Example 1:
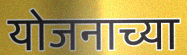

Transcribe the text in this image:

योजनाच्या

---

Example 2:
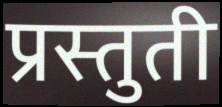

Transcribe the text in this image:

प्रस्तुती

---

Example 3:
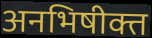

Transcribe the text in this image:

अनभिषीक्त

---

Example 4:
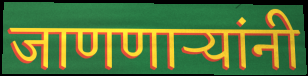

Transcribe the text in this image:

जाणणाऱ्यांनी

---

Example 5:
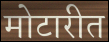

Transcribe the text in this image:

मोटारीत